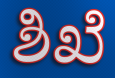
ಶಿಖೆ